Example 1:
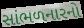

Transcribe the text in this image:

સાંભળનારનો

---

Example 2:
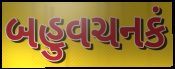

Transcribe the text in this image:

બહુવચનકં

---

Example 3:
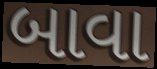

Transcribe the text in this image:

બાવા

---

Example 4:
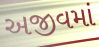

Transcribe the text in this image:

અજીવમાં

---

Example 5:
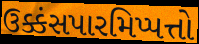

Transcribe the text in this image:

ઉક્કંસપારમિપ્પત્તો